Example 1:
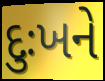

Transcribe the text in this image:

દુઃખને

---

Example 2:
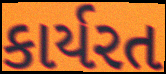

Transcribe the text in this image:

કાર્યરત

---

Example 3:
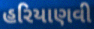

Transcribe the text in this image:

હરિયાણવી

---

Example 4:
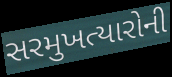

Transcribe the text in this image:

સરમુખત્યારોની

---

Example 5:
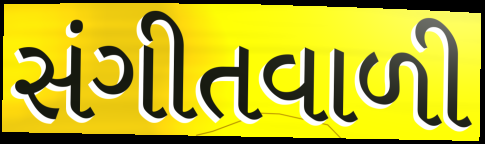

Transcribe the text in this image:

સંગીતવાળી